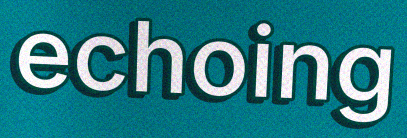
echoing